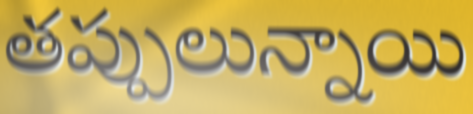
తప్పులున్నాయి